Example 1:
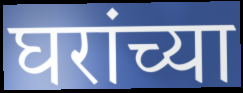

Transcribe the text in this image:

घरांच्या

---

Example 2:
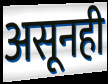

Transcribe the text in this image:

असूनही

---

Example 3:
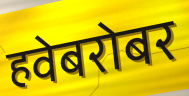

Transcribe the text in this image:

हवेबरोबर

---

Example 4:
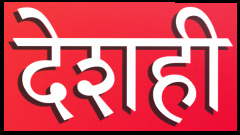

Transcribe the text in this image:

देशही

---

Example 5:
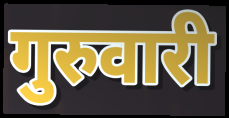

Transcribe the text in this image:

गुरुवारी